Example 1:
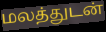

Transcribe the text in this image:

மலத்துடன்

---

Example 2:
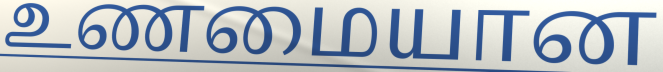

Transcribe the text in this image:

உணமையான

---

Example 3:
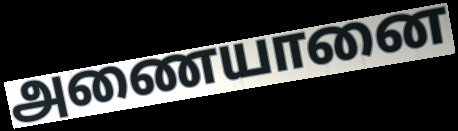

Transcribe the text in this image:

அணையானை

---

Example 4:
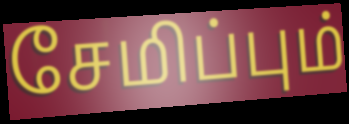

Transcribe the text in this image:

சேமிப்பும்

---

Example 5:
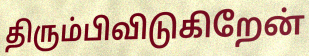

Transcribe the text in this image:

திரும்பிவிடுகிறேன்